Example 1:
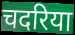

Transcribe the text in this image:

चदरिया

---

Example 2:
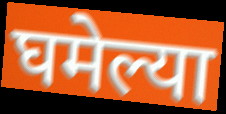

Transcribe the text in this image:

घमेल्या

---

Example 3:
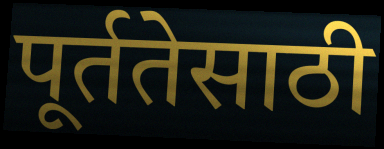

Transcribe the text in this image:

पूर्ततेसाठी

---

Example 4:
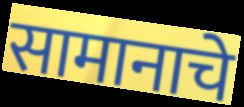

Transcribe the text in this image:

सामानाचे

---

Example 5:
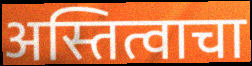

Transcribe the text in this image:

अस्तित्वाचा